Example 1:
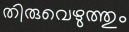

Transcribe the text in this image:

തിരുവെഴുത്തും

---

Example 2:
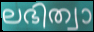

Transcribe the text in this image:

ലഭിത്വാ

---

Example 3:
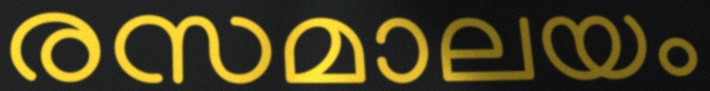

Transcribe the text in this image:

രസമാലയം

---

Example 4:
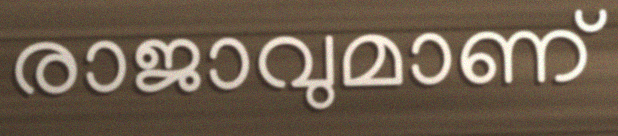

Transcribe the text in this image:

രാജാവുമാണ്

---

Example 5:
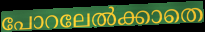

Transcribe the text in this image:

പോറലേൽക്കാതെ